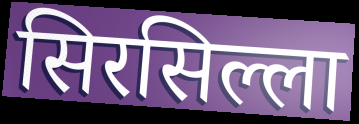
सिरसिल्ला